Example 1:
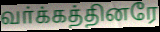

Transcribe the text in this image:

வர்க்கத்தினரே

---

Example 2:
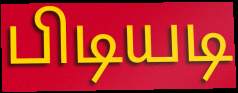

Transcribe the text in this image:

பிடியடி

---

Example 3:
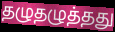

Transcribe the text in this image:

தழுதழுத்தது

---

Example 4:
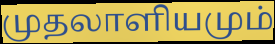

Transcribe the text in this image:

முதலாளியமும்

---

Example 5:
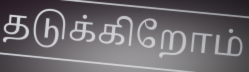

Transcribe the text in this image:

தடுக்கிறோம்